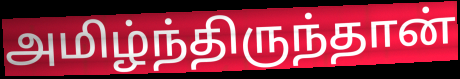
அமிழ்ந்திருந்தான்